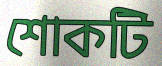
শোকটি